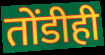
तोंडीही